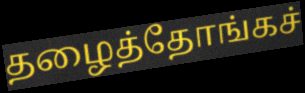
தழைத்தோங்கச்